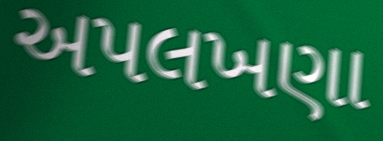
અપલખણા